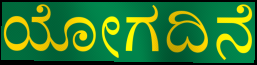
ಯೋಗದಿನೆ